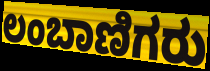
ಲಂಬಾಣಿಗರು